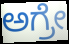
ಅಗ್ರೇ